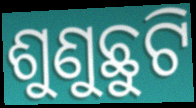
ଶୁଣୁଛୁଟି